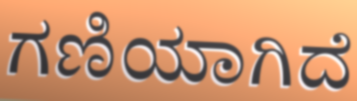
ಗಣಿಯಾಗಿದೆ